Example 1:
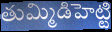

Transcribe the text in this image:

తుమ్మిడిహెట్టి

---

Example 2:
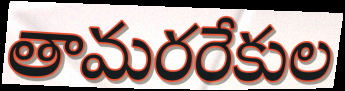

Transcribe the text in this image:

తామరరేకుల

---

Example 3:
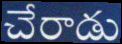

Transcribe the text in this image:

చేరాడు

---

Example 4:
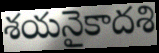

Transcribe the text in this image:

శయనైకాదశి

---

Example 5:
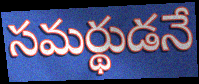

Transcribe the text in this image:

సమర్థుడనే